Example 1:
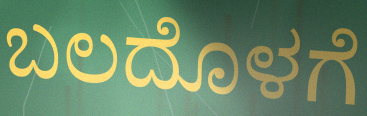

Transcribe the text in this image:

ಬಲದೊಳಗೆ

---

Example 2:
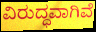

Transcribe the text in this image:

ವಿರುದ್ಧವಾಗಿವೆ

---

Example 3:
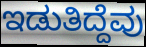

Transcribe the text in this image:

ಇಡುತಿದ್ದೆವು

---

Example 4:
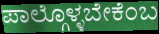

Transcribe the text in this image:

ಪಾಲ್ಗೊಳ್ಳಬೇಕೆಂಬ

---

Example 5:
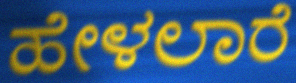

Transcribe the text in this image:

ಹೇಳಲಾರೆ